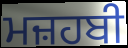
ਮਜ਼ਹਬੀ